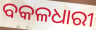
ବକଳଧାରୀ